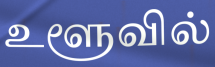
உளூவில்